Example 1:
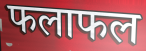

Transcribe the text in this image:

फलाफल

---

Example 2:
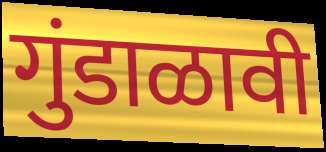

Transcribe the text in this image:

गुंडाळावी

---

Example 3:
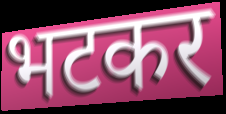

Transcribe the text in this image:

भटकर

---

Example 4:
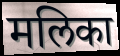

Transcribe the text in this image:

मलिका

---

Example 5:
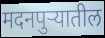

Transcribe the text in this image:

मदनपुऱ्यातील